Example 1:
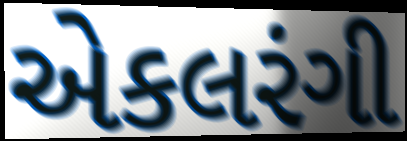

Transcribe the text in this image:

એકલરંગી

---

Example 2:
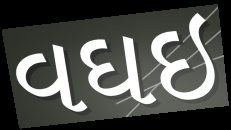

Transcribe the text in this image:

વઘઇ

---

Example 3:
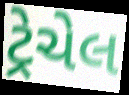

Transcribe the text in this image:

ટ્રેચેલ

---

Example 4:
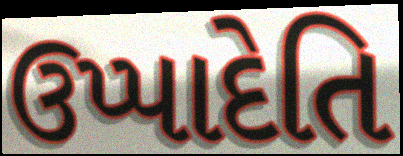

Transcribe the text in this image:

ઉપ્પાદેતિ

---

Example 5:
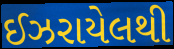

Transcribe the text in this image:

ઈઝરાયેલથી